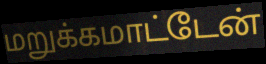
மறுக்கமாட்டேன்